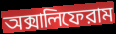
অক্সালিফেরাম